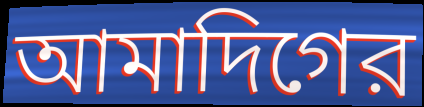
আমাদিগের